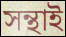
সন্থাই